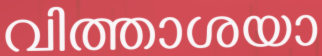
വിത്താശയാ